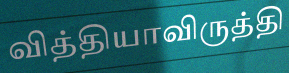
வித்தியாவிருத்தி